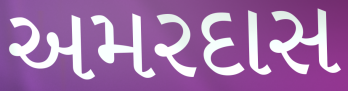
અમરદાસ